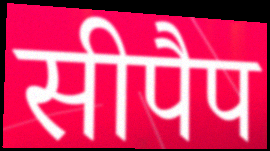
सीपैप